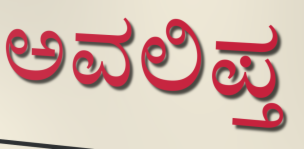
ಅವಲಿಪ್ತ